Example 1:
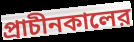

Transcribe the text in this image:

প্রাচীনকালের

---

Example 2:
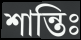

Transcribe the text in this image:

শান্তিঃ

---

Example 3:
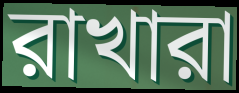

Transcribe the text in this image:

রাখারা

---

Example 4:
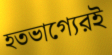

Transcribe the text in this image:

হতভাগ্যেরই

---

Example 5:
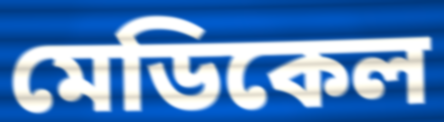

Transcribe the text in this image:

মেডিকেল